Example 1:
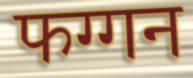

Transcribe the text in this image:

फग्गन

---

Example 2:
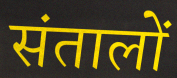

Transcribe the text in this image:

संतालों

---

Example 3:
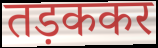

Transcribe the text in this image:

तड़ककर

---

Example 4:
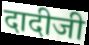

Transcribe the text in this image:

दादीजी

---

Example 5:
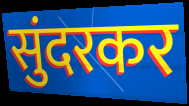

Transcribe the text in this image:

सुंदरकर